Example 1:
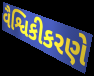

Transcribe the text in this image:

વૈશ્વિકીકરણે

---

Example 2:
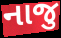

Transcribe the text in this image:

નાજુ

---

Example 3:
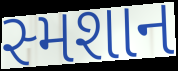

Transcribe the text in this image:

સ્મશાન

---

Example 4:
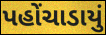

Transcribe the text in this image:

પહોંચાડાયું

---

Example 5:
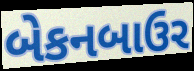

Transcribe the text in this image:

બેકનબાઉર